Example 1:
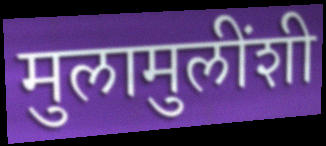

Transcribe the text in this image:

मुलामुलींशी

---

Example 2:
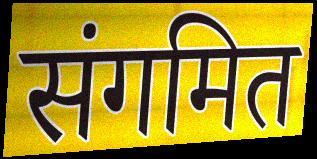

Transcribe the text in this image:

संगमित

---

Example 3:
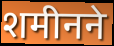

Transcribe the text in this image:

शमीनने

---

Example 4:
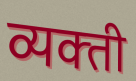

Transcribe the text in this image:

व्यक्‍ती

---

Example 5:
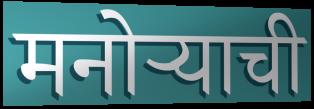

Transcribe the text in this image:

मनोऱ्याची